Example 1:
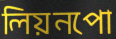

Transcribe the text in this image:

লিয়নপো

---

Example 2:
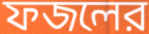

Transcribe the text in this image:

ফজলের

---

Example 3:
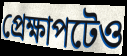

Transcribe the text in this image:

প্রেক্ষাপটেও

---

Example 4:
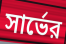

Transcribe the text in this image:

সার্ভের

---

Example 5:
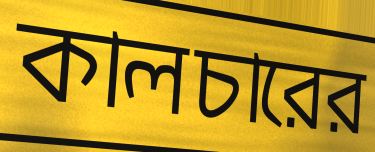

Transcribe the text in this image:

কালচারের